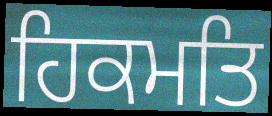
ਹਿਕਮਤਿ